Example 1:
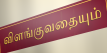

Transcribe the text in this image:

விளங்குவதையும்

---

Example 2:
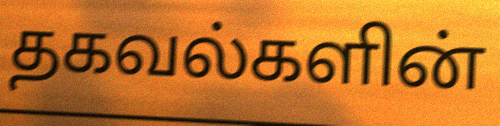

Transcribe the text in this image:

தகவல்களின்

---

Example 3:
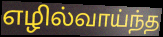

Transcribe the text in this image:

எழில்வாய்ந்த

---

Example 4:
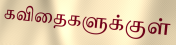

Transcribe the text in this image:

கவிதைகளுக்குள்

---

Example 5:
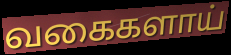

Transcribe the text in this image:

வகைகளாய்